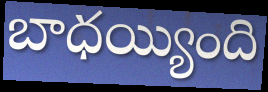
బాధయ్యింది